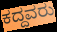
ಕದ್ದವರು